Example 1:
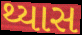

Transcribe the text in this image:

થ્યાસ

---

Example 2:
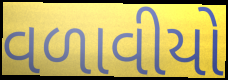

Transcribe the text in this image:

વળાવીયો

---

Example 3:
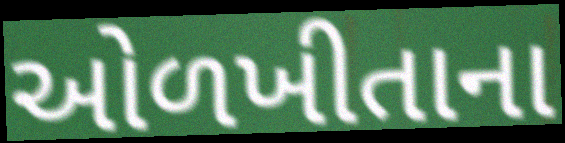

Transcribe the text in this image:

ઓળખીતાના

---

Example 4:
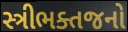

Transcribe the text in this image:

સ્ત્રીભક્તજનો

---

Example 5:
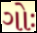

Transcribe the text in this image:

ગોઃ